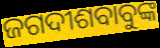
ଜଗଦୀଶବାବୁଙ୍କ